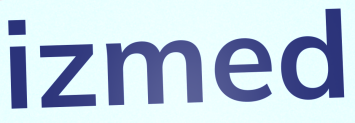
izmed